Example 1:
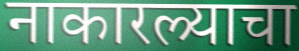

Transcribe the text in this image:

नाकारल्याचा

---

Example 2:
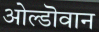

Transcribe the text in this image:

ओल्डॊवान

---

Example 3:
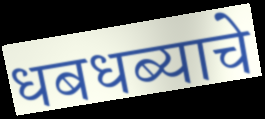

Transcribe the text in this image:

धबधब्याचे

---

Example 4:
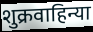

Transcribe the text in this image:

शुक्रवाहिन्या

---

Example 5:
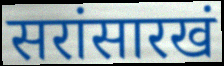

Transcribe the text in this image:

सरांसारखं